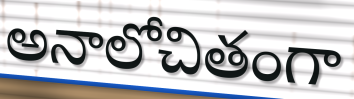
అనాలోచితంగా